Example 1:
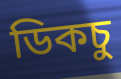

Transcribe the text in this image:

ডিকচু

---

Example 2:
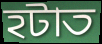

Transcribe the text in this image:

হটাত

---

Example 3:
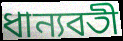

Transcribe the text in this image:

ধান্যবতী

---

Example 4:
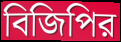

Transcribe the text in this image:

বিজিপির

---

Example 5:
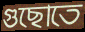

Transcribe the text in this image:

গুছোতে